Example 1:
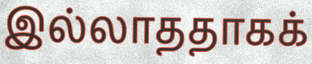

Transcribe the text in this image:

இல்லாததாகக்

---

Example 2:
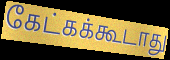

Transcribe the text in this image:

கேட்கக்கூடாது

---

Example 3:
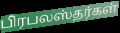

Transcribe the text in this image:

பிரபலஸ்தர்கள்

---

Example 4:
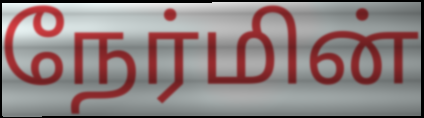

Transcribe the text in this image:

நேர்மின்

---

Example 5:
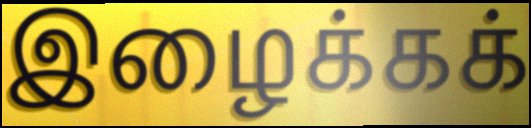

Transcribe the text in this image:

இழைக்கக்